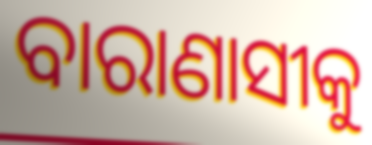
ବାରାଣାସୀକୁ